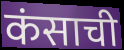
कंसाची